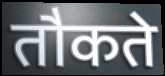
तौकते